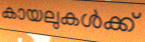
കായലുകൾക്ക്